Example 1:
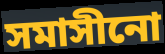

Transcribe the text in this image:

সমাসীনো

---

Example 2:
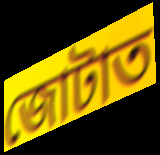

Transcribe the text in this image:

জোটাত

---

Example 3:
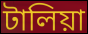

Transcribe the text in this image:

টালিয়া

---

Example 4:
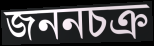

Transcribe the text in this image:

জননচক্র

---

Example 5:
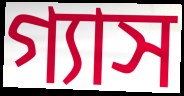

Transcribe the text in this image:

গ্যাস